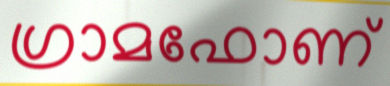
ഗ്രാമഫോണ്